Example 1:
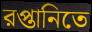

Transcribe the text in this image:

রপ্তানিতে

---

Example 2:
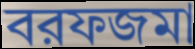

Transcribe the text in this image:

বরফজমা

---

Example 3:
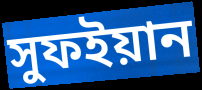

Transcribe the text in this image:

সুফইয়ান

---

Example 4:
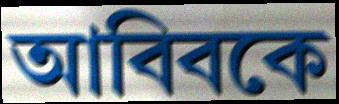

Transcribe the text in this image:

আবিবকে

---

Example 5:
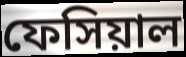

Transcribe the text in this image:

ফেসিয়াল